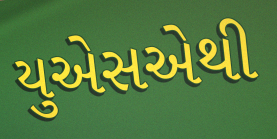
યુએસએથી